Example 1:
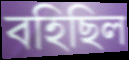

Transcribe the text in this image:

বহিছিল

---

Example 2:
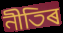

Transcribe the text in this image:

নীতিৰ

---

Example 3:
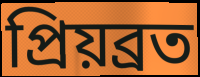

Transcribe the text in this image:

প্ৰিয়ব্ৰত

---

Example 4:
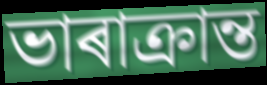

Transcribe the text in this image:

ভাৰাক্ৰান্ত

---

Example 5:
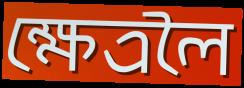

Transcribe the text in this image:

ক্ষেত্ৰলৈ